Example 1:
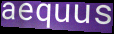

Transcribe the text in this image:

aequus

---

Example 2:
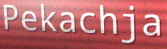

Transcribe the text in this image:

Pekachja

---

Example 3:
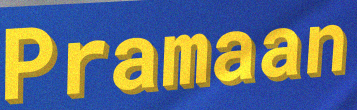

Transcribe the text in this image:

Pramaan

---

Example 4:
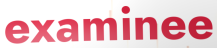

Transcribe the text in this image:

examinee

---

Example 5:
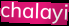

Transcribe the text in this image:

chalayi